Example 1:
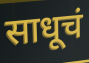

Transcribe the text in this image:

साधूचं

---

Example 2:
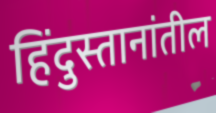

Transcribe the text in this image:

हिंदुस्तानांतील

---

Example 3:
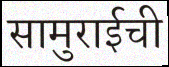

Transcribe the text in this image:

सामुराईची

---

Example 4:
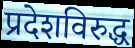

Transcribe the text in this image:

प्रदेशविरुद्ध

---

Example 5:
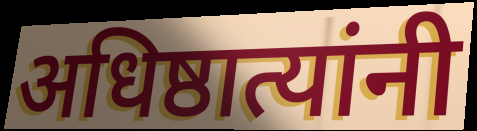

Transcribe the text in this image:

अधिष्ठात्यांनी